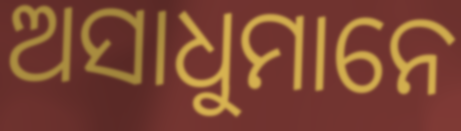
ଅସାଧୁମାନେ